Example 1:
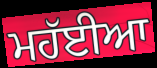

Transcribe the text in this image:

ਮਹੱਈਆ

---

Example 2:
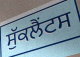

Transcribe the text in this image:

ਸੁੱਕਲੈਂਟਸ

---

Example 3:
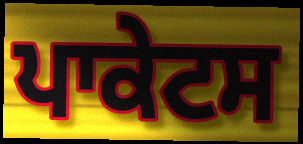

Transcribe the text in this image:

ਪਾਕੇਟਸ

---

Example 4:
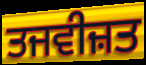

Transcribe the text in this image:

ਤਜਵੀਜ਼ਤ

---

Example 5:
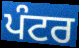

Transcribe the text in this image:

ਪੰਟਰ